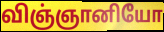
விஞ்ஞானியோ